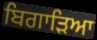
ਬਿਗਾੜਿਆ